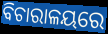
ବିଚାରାଳୟରେ